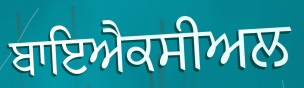
ਬਾਇਐਕਸੀਅਲ